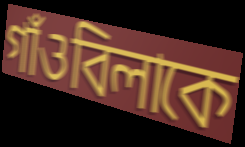
গাঁওবিলাকে